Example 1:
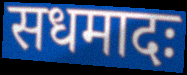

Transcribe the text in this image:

सधमादः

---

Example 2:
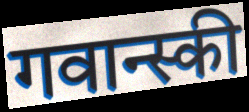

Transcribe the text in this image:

गवान्स्की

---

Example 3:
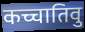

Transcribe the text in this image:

कच्चातिवु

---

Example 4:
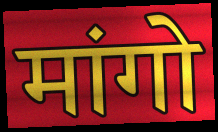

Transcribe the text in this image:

मांगो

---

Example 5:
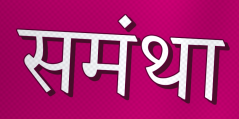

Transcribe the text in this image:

समंथा